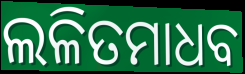
ଲଳିତମାଧବ